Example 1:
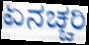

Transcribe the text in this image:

ಏನಚ್ಚರಿ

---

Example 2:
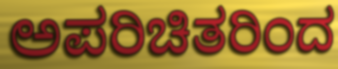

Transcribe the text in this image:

ಅಪರಿಚಿತರಿಂದ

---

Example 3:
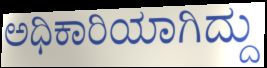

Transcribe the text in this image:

ಅಧಿಕಾರಿಯಾಗಿದ್ದು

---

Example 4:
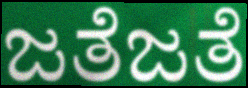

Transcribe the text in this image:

ಜತೆಜತೆ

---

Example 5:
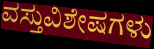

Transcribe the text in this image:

ವಸ್ತುವಿಶೇಷಗಳು